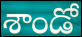
శాండో